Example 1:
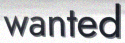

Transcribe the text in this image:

wanted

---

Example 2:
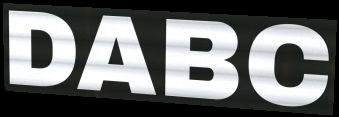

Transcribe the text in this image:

DABC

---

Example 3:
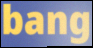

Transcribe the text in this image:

bang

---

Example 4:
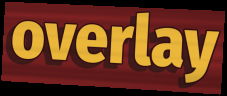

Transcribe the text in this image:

overlay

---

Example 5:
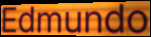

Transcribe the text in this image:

Edmundo